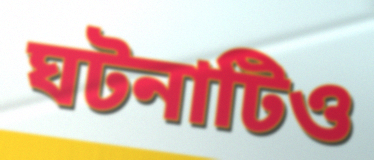
ঘটনাটিও